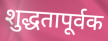
शुद्धतापूर्वक